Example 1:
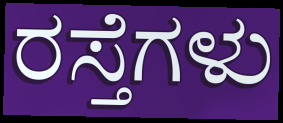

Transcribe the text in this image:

ರಸ್ತೆಗಳು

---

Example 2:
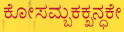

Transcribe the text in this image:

ಕೋಸಮ್ಬಕಕ್ಖನ್ಧಕೇ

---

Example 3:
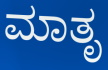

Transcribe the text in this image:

ಮಾತೃ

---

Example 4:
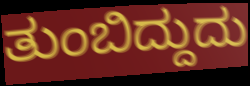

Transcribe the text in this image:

ತುಂಬಿದ್ದುದು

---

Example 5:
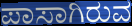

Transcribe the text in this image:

ಪಾಸಾಗಿರುವ